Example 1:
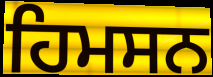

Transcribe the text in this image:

ਹਿਮਸਨ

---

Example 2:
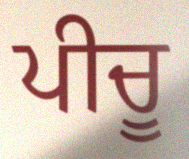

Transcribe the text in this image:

ਪੀਚੂ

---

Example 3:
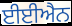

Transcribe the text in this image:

ਈਈਐਨ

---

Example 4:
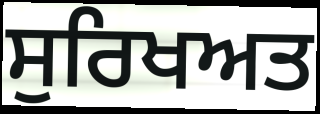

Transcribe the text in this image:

ਸੁਰਿਖਅਤ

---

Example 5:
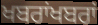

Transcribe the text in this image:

ਖਬਰਾਂਖਬਰਾਂ